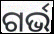
ଗର୍ଭ